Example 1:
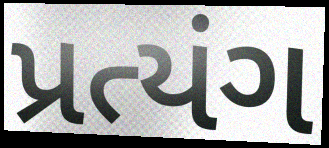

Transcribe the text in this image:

પ્રત્યંગ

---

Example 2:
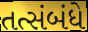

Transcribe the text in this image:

તત્સંબંધે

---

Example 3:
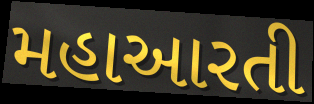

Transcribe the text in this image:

મહાઆરતી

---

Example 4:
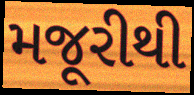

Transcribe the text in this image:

મજૂરીથી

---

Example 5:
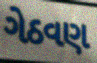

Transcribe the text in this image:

ગેઠવણ